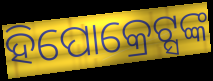
ହିପୋକ୍ରେଟ୍ସଙ୍କ